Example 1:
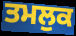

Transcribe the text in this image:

ਤਮਲੁਕ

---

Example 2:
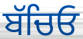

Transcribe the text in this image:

ਬੱਚਿਓ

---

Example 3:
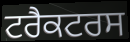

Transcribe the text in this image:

ਟਰੈਕਟਰਸ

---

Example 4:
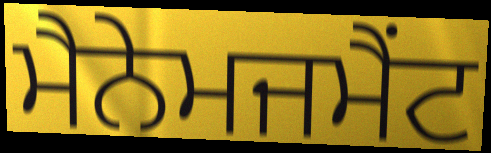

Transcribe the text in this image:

ਮੈਨੇਮਜਮੈਂਟ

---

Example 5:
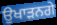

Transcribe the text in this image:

ਉਖਾੜਨਗੇ